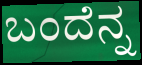
ಬಂದೆನ್ನ